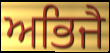
ਅਭਿਜੈ